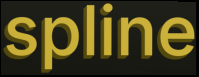
spline